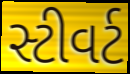
સ્ટીવર્ટ